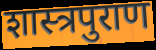
शास्त्रपुराण